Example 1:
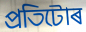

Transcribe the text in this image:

প্ৰতিটোৰ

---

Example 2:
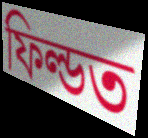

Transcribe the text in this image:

ফিল্ডত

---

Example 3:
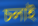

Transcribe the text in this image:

চলাই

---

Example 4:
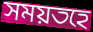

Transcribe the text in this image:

সময়তহে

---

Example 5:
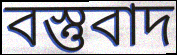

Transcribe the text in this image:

বস্তুবাদ